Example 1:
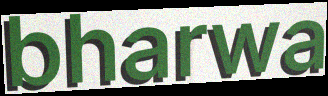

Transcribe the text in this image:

bharwa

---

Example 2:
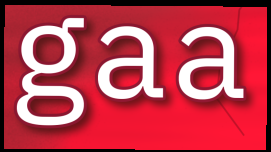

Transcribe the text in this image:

gaa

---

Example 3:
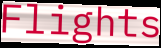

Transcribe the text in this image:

Flights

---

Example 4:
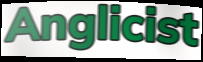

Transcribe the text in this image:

Anglicist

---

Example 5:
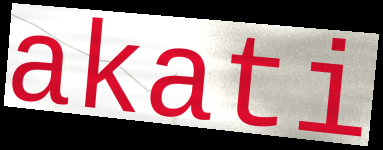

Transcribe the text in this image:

akati